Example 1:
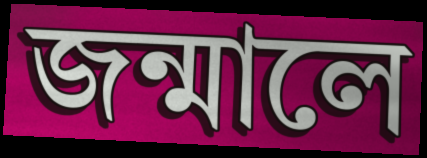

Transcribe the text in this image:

জন্মালে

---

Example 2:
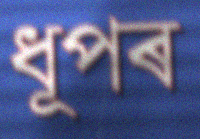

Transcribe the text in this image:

ধূপৰ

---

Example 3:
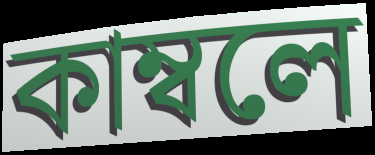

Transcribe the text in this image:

কাম্বলে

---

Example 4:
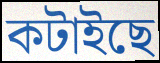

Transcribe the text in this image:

কটাইছে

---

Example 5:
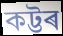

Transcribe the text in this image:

কট্টৰ